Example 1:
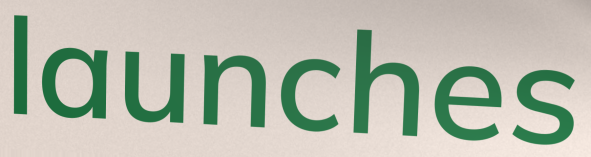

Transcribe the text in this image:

launches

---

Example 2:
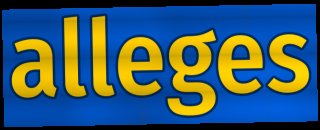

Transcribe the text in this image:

alleges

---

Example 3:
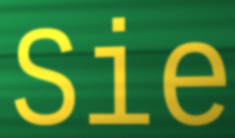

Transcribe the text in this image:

Sie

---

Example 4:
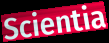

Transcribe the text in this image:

Scientia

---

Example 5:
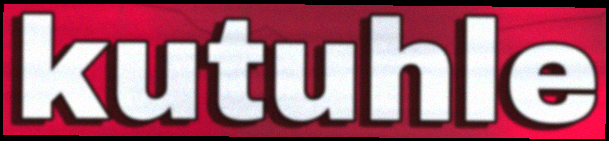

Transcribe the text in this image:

kutuhle